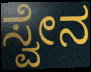
ಸ್ವೇನ